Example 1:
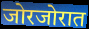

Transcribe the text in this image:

जोरजोरात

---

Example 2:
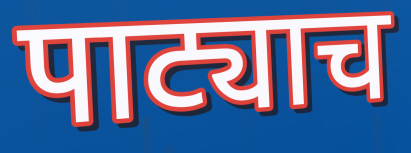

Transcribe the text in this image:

पाट्याच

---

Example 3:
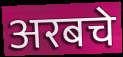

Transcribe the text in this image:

अरबचे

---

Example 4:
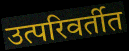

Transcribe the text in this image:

उत्परिवर्तीत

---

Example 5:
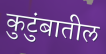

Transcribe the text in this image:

कुटुंबातील